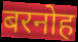
बरनोह